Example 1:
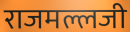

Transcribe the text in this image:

राजमल्लजी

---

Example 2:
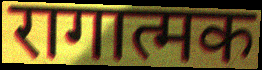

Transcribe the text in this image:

रागात्मक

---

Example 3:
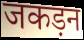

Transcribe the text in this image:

जकड़न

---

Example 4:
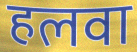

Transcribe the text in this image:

हलवा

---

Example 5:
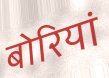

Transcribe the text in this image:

बोरियां